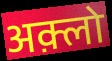
अक़्लो